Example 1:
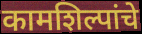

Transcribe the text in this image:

कामशिल्पांचे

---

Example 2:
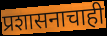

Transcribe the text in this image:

प्रशासनाचाही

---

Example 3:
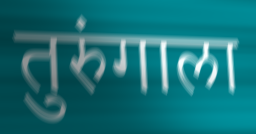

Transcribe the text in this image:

तुरुंगाला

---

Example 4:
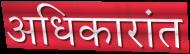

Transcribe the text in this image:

अधिकारांत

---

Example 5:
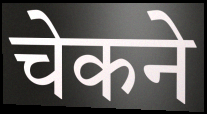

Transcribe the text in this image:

चेकने